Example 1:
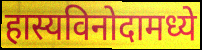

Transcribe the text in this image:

हास्यविनोदामध्ये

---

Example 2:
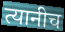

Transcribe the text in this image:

त्यानीच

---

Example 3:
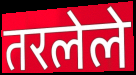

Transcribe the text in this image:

तरलेले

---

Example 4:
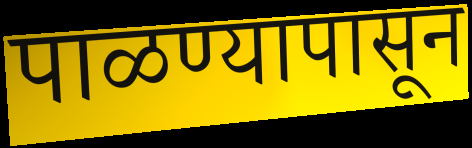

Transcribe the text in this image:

पाळण्यापासून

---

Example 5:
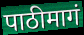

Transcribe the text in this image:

पाठीमागं